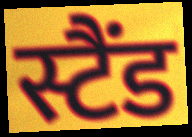
स्टैंड